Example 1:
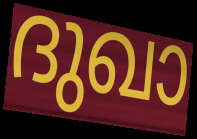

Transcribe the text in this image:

ദുഖാ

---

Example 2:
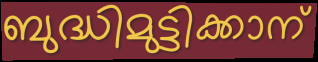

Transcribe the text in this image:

ബുദ്ധിമുട്ടിക്കാന്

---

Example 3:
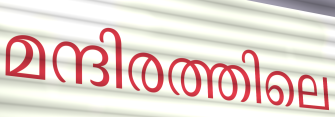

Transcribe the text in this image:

മന്ദിരത്തിലെ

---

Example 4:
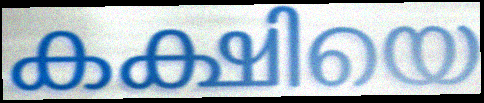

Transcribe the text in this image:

കക്ഷിയെ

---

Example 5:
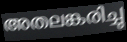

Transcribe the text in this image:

അതലങ്കരിച്ചു